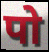
पो